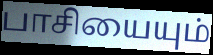
பாசியையும்